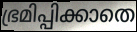
ഭ്രമിപ്പിക്കാതെ